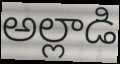
అల్లాడి